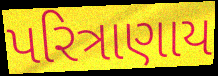
પરિત્રાણાય